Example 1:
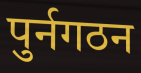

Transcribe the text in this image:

पुर्नगठन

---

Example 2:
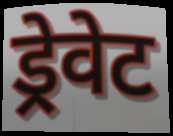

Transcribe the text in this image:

ड्रेवेट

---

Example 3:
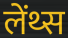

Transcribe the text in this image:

लेंथ्स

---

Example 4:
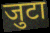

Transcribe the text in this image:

जुटा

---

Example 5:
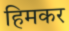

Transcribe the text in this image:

हिमकर